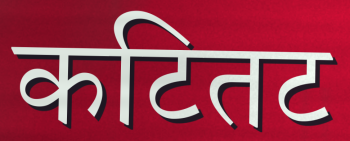
कटितट